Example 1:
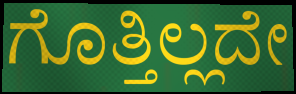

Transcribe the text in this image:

ಗೊತ್ತಿಲ್ಲದೇ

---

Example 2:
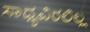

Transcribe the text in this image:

ಸಾಧ್ಯವಿರಲಿಲ್ಲ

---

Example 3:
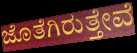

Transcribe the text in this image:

ಜೊತೆಗಿರುತ್ತೇವೆ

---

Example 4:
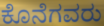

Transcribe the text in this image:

ಕೊನೆಗವರು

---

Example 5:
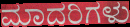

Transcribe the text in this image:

ಮಾದರಿಗಳು